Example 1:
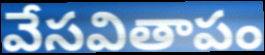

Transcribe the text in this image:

వేసవితాపం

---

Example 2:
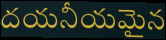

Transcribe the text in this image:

దయనీయమైన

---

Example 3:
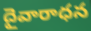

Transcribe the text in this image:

దైవారాధన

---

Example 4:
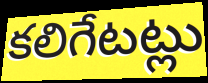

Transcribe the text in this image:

కలిగేటట్లు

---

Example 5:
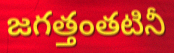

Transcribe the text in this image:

జగత్తంతటినీ